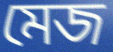
মেজ